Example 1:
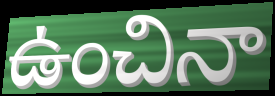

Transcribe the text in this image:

ఉంచినా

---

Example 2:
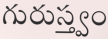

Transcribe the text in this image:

గురుస్త్వం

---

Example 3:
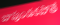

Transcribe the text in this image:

బావుండకపోతే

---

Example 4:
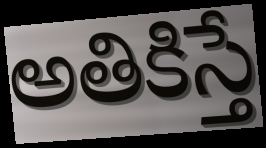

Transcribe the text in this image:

అతికిస్తే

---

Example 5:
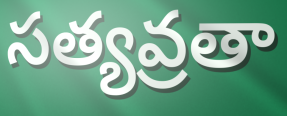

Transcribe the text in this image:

సత్యవ్రతా